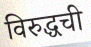
विरुद्धची